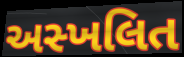
અસ્ખલિત